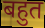
बहुत